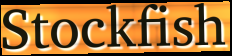
Stockfish